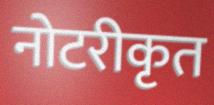
नोटरीकृत